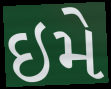
ઇમે